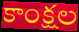
కాంక్షల